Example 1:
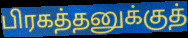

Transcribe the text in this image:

பிரகத்தனுக்குத்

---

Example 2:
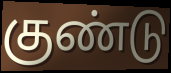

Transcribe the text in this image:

குண்டு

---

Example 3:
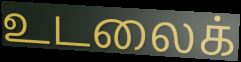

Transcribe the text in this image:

உடலைக்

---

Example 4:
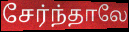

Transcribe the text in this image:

சேர்ந்தாலே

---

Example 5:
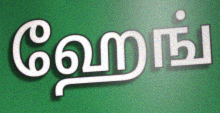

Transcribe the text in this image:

ஹேங்